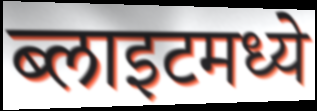
ब्लाइटमध्ये